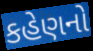
કહેણનો